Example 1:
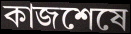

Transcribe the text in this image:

কাজশেষে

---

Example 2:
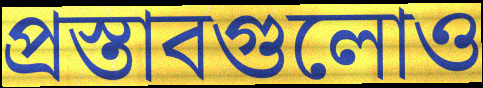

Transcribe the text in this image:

প্রস্তাবগুলোও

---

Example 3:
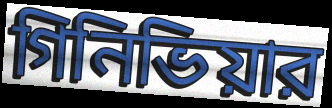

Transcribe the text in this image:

গিনিভিয়ার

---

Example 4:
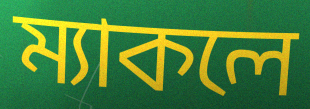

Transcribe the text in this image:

ম্যাকলে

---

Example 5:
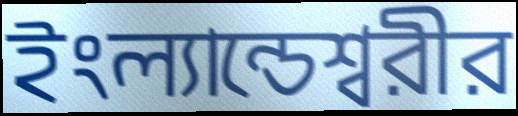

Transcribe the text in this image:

ইংল্যান্ডেশ্বরীর